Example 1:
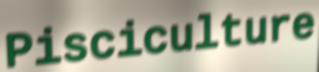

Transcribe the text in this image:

Pisciculture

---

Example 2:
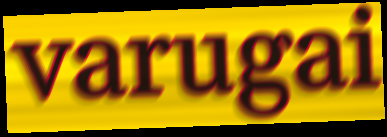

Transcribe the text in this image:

varugai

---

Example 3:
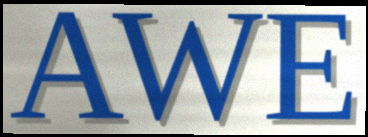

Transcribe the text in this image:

AWE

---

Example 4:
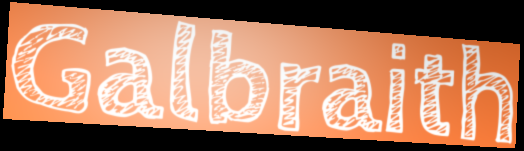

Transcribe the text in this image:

Galbraith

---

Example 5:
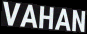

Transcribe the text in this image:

VAHAN